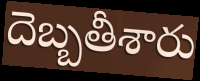
దెబ్బతీశారు